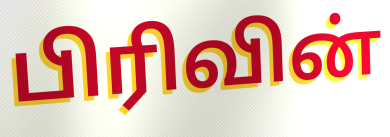
பிரிவின்